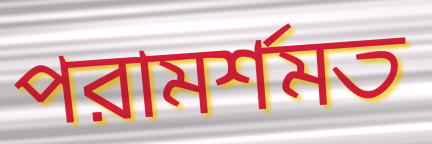
পরামর্শমত